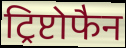
ट्रिप्टोफैन